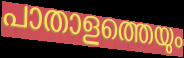
പാതാളത്തെയും